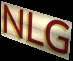
NLG